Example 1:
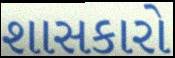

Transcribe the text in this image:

શાસકારો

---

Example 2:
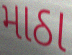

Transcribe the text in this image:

માઠા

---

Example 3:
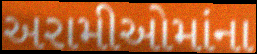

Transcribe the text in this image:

અરામીઓમાંના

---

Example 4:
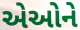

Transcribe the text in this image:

એઓને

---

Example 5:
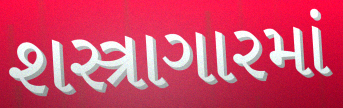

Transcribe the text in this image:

શસ્ત્રાગારમાં